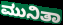
ಮುನಿತಾ